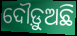
ଦୌଡ଼ୁଅଛି